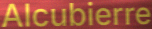
Alcubierre